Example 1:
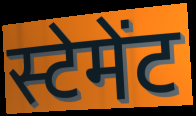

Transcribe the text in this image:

स्टेमेंट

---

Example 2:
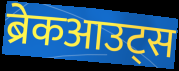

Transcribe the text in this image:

ब्रेकआउट्स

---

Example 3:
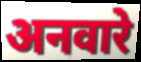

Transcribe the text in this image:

अनवारे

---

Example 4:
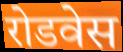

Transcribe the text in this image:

रोडवेस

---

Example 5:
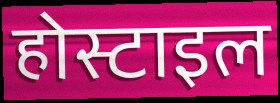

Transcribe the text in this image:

होस्टाइल